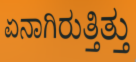
ಏನಾಗಿರುತ್ತಿತ್ತು